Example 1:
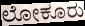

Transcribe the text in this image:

ಲೋಕೂರು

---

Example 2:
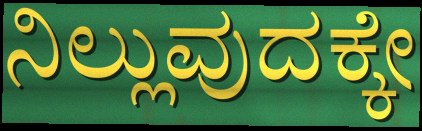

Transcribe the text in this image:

ನಿಲ್ಲುವುದಕ್ಕೇ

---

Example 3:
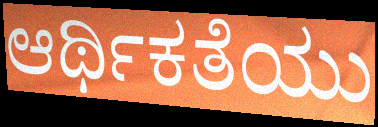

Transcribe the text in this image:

ಆರ್ಥಿಕತೆಯು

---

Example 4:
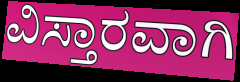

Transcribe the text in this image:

ವಿಸ್ತಾರವಾಗಿ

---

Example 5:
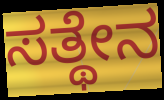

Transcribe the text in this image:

ಸತ್ಥೇನ